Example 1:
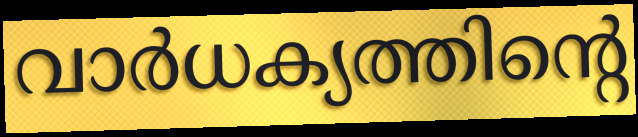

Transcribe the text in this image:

വാർധക്യത്തിന്റെ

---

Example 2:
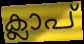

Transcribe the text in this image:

ക്ലാപ്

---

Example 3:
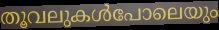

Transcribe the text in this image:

തൂവലുകൾപോലെയും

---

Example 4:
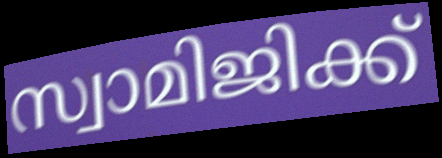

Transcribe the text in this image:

സ്വാമിജിക്ക്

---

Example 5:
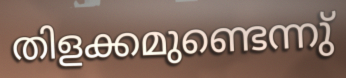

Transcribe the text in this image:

തിളക്കമുണ്ടെന്നു്